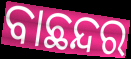
ବାଛନ୍ଦର